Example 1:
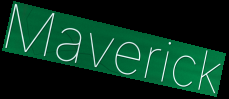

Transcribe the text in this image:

Maverick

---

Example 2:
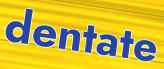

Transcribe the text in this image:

dentate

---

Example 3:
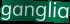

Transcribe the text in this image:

ganglia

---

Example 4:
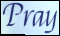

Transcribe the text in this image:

Pray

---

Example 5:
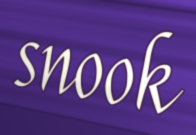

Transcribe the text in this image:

snook